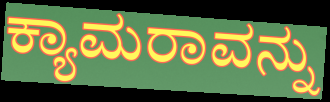
ಕ್ಯಾಮರಾವನ್ನು